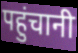
पहुंचानी